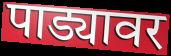
पाड्यावर